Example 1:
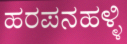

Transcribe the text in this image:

ಹರಪನಹಳ್ಳಿ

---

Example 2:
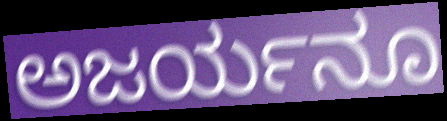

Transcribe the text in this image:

ಅಜರ್ಯನೂ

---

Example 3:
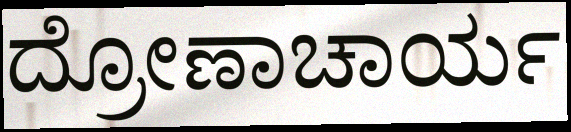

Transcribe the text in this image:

ದ್ರೋಣಾಚಾರ್ಯ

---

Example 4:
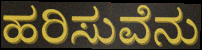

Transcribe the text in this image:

ಹರಿಸುವೆನು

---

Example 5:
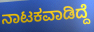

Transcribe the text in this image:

ನಾಟಕವಾಡಿದ್ದೆ